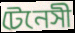
টেনেসী